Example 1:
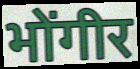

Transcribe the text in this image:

भोंगीर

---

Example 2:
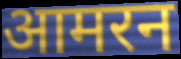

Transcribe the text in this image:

आमरन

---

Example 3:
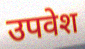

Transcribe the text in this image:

उपवेश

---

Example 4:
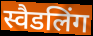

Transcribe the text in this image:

स्वैडलिंग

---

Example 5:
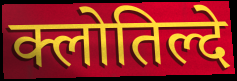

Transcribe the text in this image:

क्लोतिल्दे